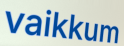
vaikkum